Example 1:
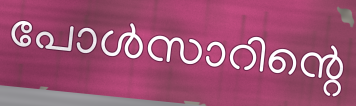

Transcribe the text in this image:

പോൾസാറിന്റെ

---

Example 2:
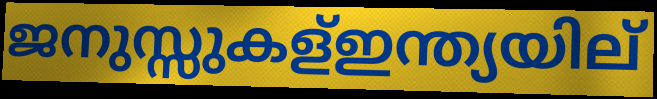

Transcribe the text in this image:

ജനുസ്സുകള്ഇന്ത്യയില്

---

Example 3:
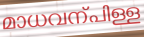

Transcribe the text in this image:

മാധവന്പിള്ള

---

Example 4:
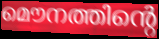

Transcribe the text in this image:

മൌനത്തിന്റെ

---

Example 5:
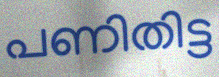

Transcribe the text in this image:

പണിതിട്ട